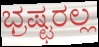
ಭ್ರಷ್ಟರಲ್ಲ